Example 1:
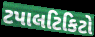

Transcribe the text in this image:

ટપાલટિકિટો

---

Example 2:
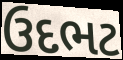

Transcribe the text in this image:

ઉદભટ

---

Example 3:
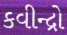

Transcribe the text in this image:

કવીન્દ્રો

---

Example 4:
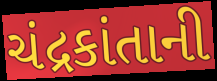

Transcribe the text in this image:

ચંદ્રકાંતાની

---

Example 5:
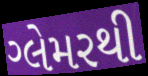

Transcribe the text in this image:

ગ્લેમરથી